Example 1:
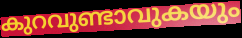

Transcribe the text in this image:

കുറവുണ്ടാവുകയും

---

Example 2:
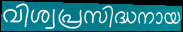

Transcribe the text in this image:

വിശ്വപ്രസിദ്ധനായ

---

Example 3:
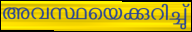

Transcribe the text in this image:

അവസ്ഥയെക്കുറിച്ചു്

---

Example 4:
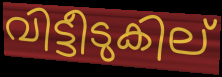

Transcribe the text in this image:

വിട്ടീടുകില്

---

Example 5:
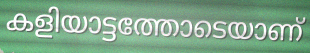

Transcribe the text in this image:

കളിയാട്ടത്തോടെയാണ്